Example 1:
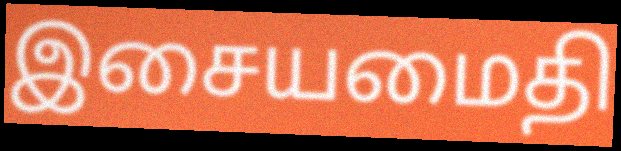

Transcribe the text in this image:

இசையமைதி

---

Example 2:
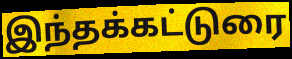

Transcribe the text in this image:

இந்தக்கட்டுரை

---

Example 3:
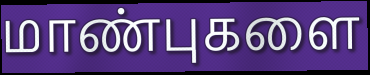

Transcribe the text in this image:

மாண்புகளை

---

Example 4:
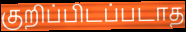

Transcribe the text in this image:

குறிப்பிடப்படாத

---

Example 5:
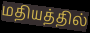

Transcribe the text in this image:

மதியத்தில்